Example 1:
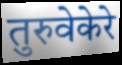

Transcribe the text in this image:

तुरुवेकेरे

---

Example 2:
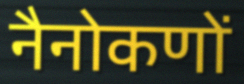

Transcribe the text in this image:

नैनोकणों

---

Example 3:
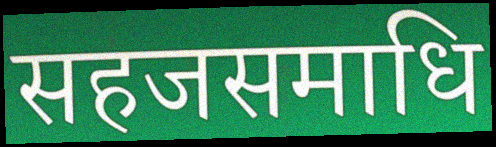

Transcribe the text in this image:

सहजसमाधि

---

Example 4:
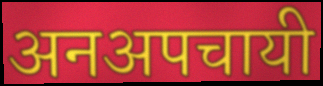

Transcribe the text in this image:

अनअपचायी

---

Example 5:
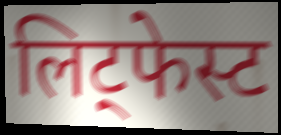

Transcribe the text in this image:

लिट्फेस्ट